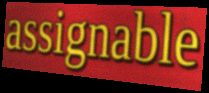
assignable